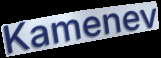
Kamenev